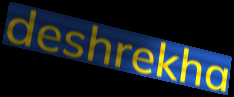
deshrekha